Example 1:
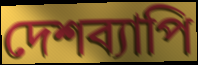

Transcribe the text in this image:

দেশব্যাপি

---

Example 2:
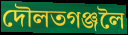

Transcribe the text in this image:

দৌলতগঞ্জলৈ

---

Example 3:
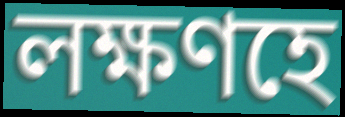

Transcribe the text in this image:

লক্ষণহে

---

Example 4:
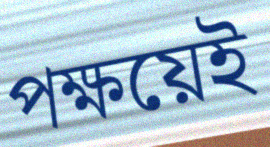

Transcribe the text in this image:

পক্ষয়েই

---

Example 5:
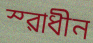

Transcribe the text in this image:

স্ৱাধীন